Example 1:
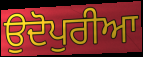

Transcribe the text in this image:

ਉਦੋਪੁਰੀਆ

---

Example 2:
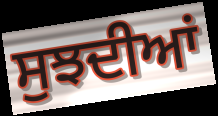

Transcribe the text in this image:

ਸੁਝਦੀਆਂ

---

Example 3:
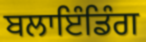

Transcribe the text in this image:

ਬਲਾਇੰਡਿੰਗ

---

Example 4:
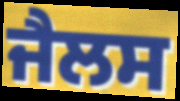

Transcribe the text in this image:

ਜੈਲਸ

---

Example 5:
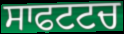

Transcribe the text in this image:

ਸਾਫਟਟਚ